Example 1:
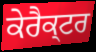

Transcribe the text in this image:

ਕੇਰੈਕ੍ਟਰ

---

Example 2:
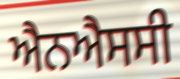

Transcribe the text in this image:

ਐਨਐਸਸੀ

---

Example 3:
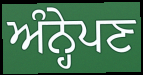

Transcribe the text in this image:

ਅੰਨ੍ਹੇਪਣ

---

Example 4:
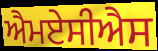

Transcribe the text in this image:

ਐਮਏਸੀਐਸ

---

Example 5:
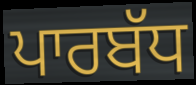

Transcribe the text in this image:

ਪਾਰਬੱਧ